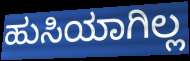
ಹುಸಿಯಾಗಿಲ್ಲ